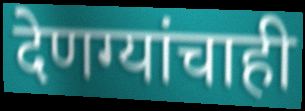
देणग्यांचाही